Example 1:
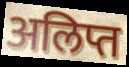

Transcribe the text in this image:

अलिप्त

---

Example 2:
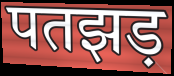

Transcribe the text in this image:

पतझड़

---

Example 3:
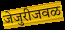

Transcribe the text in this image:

जेजुरीजवळ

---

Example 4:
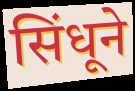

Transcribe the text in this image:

सिंधूने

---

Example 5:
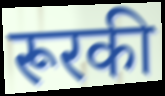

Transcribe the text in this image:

रूरकी